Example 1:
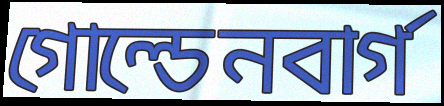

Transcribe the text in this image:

গোল্ডেনবার্গ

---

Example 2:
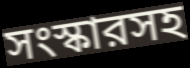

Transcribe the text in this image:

সংস্কারসহ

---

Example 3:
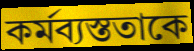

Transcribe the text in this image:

কর্মব্যস্ততাকে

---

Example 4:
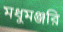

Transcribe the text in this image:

মধুমঞ্জরি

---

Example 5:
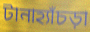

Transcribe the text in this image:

টানাহ্যাঁচড়া